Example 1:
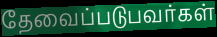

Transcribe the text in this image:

தேவைப்படுபவர்கள்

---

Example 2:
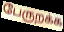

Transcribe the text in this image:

பேருறக்க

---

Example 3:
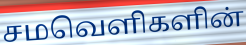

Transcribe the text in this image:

சமவெளிகளின்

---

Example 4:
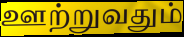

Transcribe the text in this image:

ஊற்றுவதும்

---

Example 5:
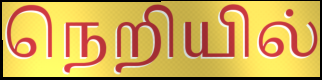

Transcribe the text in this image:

நெறியில்